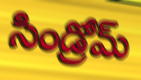
సిండ్రోమ్